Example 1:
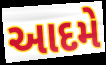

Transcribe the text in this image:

આદમે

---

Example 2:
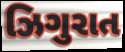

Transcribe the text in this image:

ઝિગુરાત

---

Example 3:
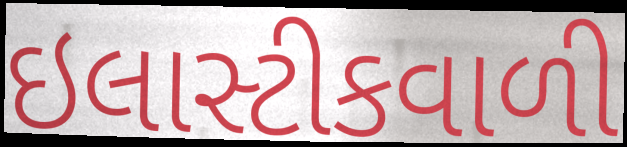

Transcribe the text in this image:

ઇલાસ્ટીકવાળી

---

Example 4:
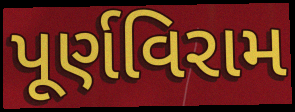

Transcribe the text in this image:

પૂર્ણવિરામ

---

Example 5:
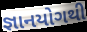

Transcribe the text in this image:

જ્ઞાનયોગથી